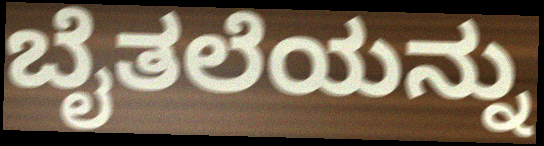
ಬೈತಲೆಯನ್ನು